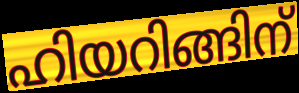
ഹിയറിങ്ങിന്